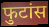
फुटांस